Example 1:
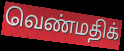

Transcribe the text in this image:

வெண்மதிக்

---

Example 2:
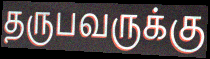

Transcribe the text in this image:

தருபவருக்கு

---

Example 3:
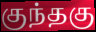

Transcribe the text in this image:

குந்தகு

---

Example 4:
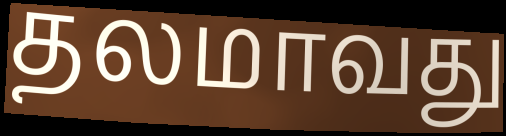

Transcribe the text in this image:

தலமாவது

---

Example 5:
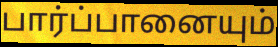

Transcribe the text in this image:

பார்ப்பானையும்